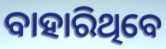
ବାହାରିଥିବେ